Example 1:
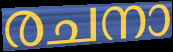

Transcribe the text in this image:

രചനാ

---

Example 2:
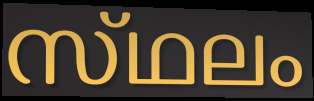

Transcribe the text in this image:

സ്‌ഥലം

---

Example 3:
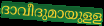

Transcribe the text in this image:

ദാവീദുമായുളള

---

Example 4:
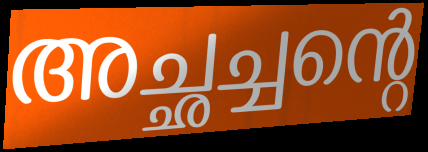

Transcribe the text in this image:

അച്ഛച്ചന്റെ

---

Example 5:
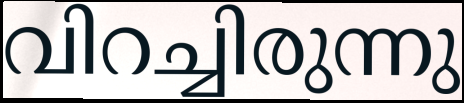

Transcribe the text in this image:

വിറച്ചിരുന്നു